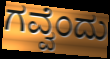
ಗವ್ವೆಂದು